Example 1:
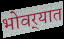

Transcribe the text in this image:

भोवर्यात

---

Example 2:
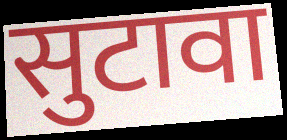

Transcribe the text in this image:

सुटावा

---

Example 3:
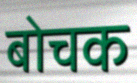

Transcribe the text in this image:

बोचक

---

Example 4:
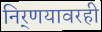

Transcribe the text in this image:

निर्णयावरही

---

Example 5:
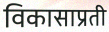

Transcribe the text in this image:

विकासाप्रती